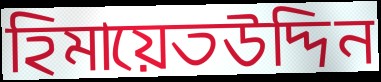
হিমায়েতউদ্দিন